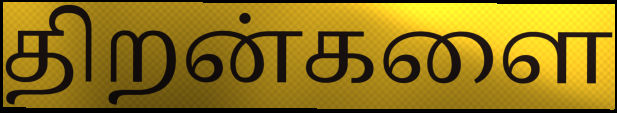
திறன்களை